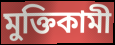
মুক্তিকামী